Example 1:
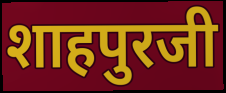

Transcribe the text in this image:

शाहपुरजी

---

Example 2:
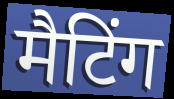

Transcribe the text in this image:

मैटिंग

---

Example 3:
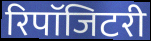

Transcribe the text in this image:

रिपॉजिटरी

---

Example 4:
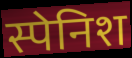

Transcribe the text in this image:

स्पेनिश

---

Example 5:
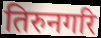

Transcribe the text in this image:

तिरुनगरि